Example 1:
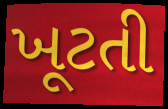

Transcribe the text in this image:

ખૂટતી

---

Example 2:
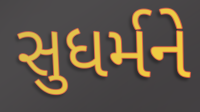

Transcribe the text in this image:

સુધર્મને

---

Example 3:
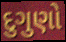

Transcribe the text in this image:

દુગુણો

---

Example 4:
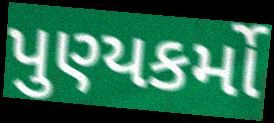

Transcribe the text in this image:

પુણ્યકર્મો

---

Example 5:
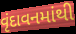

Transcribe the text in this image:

વૃંદાવનમાંથી